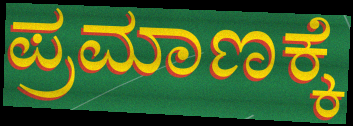
ಪ್ರಮಾಣಕ್ಕೆ